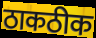
ठाकठीक